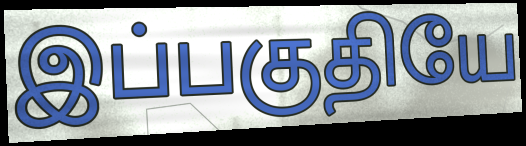
இப்பகுதியே